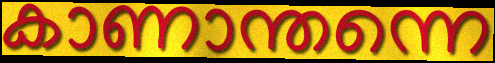
കാണാന്തന്നെ